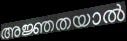
അജ്ഞതയാൽ